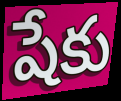
షేకు